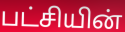
பட்சியின்